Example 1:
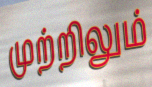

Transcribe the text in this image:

முற்றிலும்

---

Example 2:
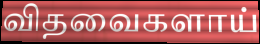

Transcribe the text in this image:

விதவைகளாய்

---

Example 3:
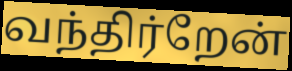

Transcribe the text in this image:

வந்திர்றேன்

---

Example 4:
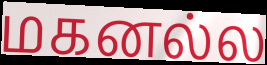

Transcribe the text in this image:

மகனல்ல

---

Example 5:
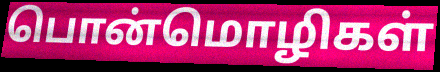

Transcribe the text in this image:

பொன்மொழிகள்